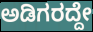
ಅಡಿಗರದ್ದೇ